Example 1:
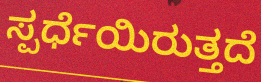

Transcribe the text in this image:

ಸ್ಪರ್ಧೆಯಿರುತ್ತದೆ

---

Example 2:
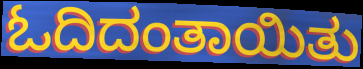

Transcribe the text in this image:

ಓದಿದಂತಾಯಿತು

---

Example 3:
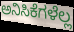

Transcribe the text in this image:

ಅನಿಸಿಕೆಗಳೆಲ್ಲ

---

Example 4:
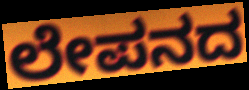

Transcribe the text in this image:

ಲೇಪನದ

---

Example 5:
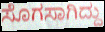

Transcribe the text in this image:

ಸೊಗಸಾಗಿದ್ದು